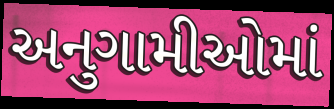
અનુગામીઓમાં